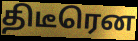
திடீரென